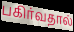
பகிர்வதால்